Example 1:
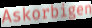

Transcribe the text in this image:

Askorbigen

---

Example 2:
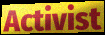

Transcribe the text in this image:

Activist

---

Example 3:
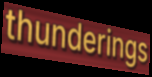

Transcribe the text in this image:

thunderings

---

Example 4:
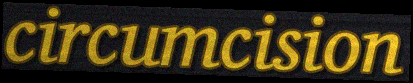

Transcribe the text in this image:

circumcision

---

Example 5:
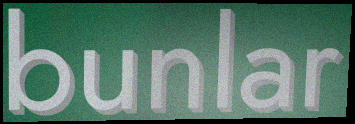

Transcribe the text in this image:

bunlar